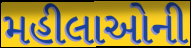
મહીલાઓની